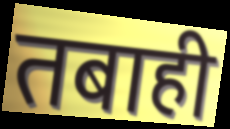
तबाही